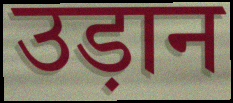
उड़ान